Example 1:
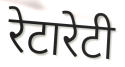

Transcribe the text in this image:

रेटारेटी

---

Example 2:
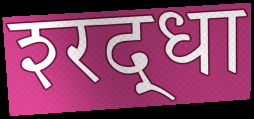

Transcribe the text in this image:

श्रद्धा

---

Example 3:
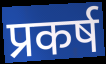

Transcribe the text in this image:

प्रकर्ष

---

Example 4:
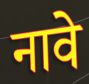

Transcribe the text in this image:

नावे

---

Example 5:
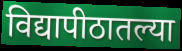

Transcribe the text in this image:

विद्यापीठातल्या